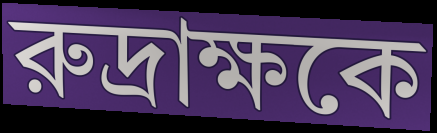
রুদ্রাক্ষকে